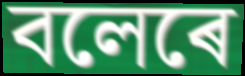
বলেৰে